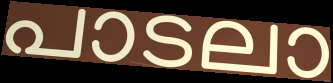
പാടലാ